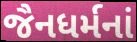
જૈનધર્મનાં